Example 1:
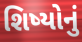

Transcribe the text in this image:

શિષ્યોનું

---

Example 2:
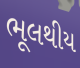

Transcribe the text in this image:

ભૂલથીય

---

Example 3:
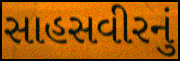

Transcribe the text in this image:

સાહસવીરનું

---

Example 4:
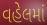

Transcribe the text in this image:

વહેલમાં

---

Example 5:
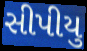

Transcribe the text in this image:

સીપીયુ